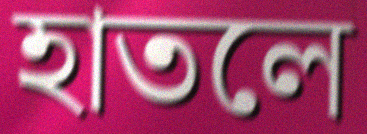
হাতলে